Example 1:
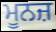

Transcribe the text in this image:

ਮੂਨਜ਼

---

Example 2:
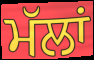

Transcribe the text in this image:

ਮੱਲਾਂ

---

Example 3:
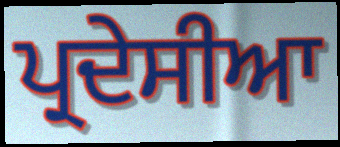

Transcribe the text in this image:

ਪ੍ਰਦੇਸੀਆ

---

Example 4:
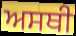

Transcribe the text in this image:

ਅਸਥੀ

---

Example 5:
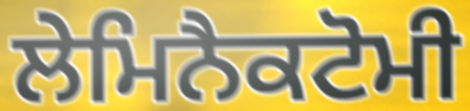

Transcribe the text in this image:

ਲੇਮਿਨੈਕਟੋਮੀ